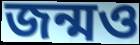
জন্মও